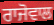
ਰਾਜੋਵਾਲ